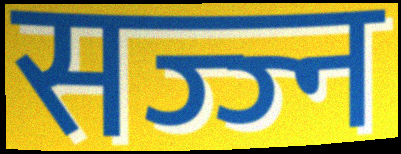
सज्ज्न